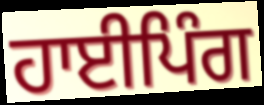
ਹਾਈਪਿੰਗ